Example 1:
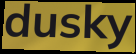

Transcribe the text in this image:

dusky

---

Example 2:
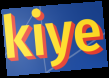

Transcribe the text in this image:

kiye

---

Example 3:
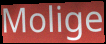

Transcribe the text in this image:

Molige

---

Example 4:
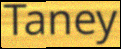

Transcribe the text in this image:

Taney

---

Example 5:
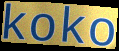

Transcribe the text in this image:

koko